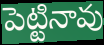
పెట్టినావు